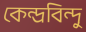
কেন্দ্ৰবিন্দু